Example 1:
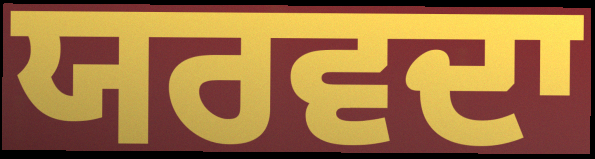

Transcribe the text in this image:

ਯਰਵਦਾ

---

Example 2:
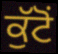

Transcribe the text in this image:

ਕੁੱਟੋਂ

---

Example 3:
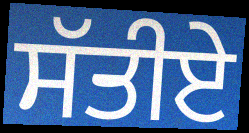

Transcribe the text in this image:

ਸੱਤੀਏ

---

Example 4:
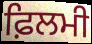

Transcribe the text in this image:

ਫ਼ਿਲਮੀ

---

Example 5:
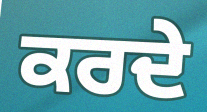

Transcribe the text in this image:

ਕਰਦੇ